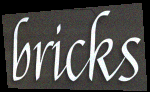
bricks